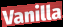
Vanilla